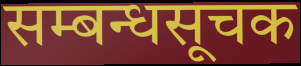
सम्बन्धसूचक